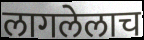
लागलेलाच